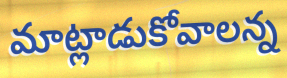
మాట్లాడుకోవాలన్న